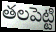
తలపెట్టి